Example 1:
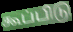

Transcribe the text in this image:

கூப்பிடு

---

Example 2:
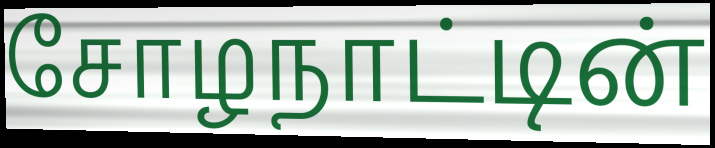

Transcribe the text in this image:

சோழநாட்டின்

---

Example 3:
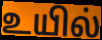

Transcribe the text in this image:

உயில்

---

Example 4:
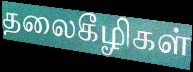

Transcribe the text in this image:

தலைகீழிகள்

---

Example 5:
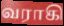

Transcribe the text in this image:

வராகி